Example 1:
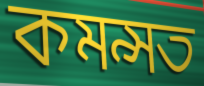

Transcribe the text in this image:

কমন্সত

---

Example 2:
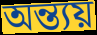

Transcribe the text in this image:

অন্ত্যয়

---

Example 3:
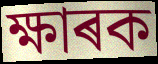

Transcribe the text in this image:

ক্ষাৰক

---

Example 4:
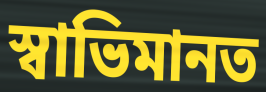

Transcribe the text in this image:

স্বাভিমানত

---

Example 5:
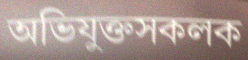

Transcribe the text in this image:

অভিযুক্তসকলক